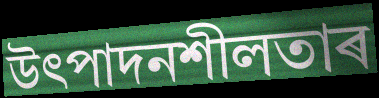
উৎপাদনশীলতাৰ